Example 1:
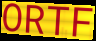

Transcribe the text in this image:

ORTF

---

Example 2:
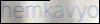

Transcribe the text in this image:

hemkavyo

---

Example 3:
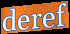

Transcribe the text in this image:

deref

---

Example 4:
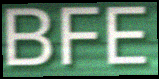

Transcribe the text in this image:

BFE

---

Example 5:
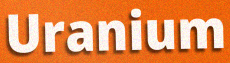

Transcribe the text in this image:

Uranium